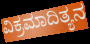
ವಿಕ್ರಮಾದಿತ್ಯನ